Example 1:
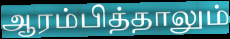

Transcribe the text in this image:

ஆரம்பித்தாலும்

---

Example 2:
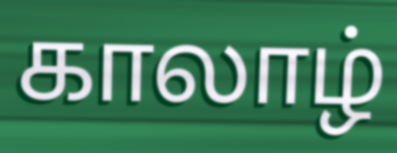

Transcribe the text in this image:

காலாழ்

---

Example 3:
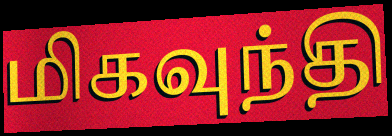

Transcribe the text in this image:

மிகவுந்தி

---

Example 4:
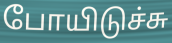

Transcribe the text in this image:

போயிடுச்சு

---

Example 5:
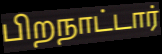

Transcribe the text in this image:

பிறநாட்டார்